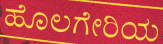
ಹೊಲಗೇರಿಯ